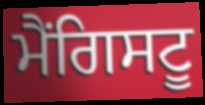
ਮੈਂਗਿਸਟੂ